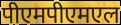
पीएमपीएमएल